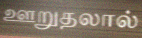
ஊறுதலால்